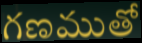
గణముతో